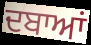
ਦਬਾਆਂ